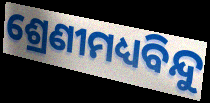
ଶ୍ରେଣୀମଧ୍ୟବିନ୍ଦୁ